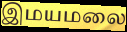
இமயமலை